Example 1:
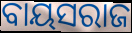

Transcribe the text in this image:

ବାୟସରାଜ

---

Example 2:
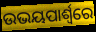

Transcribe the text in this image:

ଉଭୟପାର୍ଶ୍ବରେ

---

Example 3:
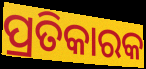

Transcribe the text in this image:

ପ୍ରତିକାରକ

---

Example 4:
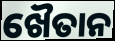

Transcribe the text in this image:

ଖୈତାନ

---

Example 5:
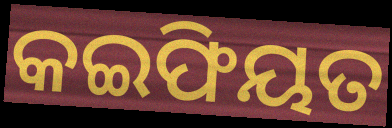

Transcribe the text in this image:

କଇଫିୟତ